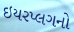
ઇયરપ્લગનો